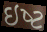
ઇષ્‍ટ